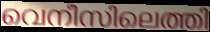
വെനീസിലെത്തി